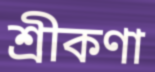
শ্রীকণা